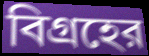
বিগ্রহের